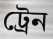
ট্রেন